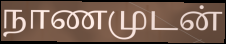
நாணமுடன்